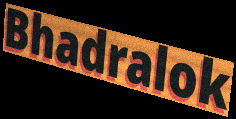
Bhadralok